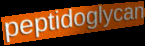
peptidoglycan